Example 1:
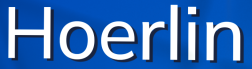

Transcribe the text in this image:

Hoerlin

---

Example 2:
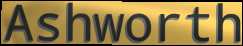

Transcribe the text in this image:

Ashworth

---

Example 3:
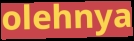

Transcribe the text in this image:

olehnya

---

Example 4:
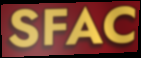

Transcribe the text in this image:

SFAC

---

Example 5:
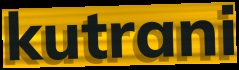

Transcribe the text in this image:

kutrani